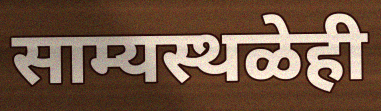
साम्यस्थळेही